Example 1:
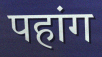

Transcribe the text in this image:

पहांग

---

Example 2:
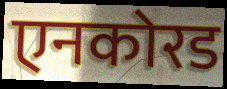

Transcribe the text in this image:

एनकोरड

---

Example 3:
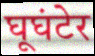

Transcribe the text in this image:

घूघंटेर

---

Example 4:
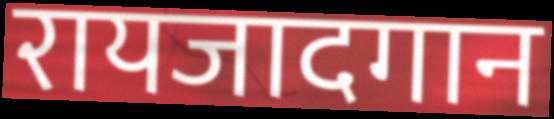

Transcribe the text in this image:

रायजादगान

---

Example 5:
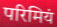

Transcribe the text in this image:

परिमियं